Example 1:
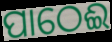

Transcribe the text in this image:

ପାଠେଈ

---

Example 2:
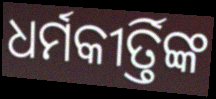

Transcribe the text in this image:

ଧର୍ମକୀର୍ତ୍ତିଙ୍କ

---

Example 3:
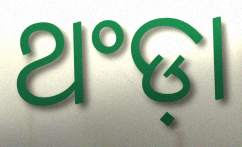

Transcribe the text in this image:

ଥଂଡ଼ା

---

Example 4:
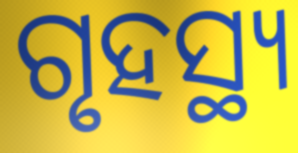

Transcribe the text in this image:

ଗୃହସ୍ଥ୍ୟ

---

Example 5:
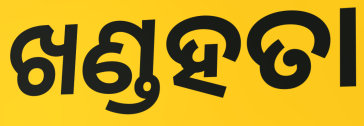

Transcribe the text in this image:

ଖଣ୍ଡହତା